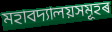
মহাবদ্যালয়সমূহৰ